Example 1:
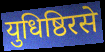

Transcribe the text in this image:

युधिष्ठिरसे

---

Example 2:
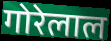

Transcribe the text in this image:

गोरेलाल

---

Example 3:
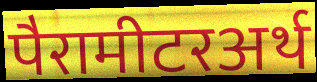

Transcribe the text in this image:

पैरामीटरअर्थ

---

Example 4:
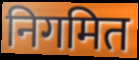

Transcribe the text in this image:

निगमित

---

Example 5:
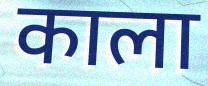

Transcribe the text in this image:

काला